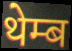
थेम्ब